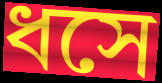
ধসে